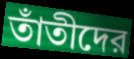
তাঁতীদের